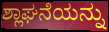
ಶ್ಲಾಘನೆಯನ್ನು